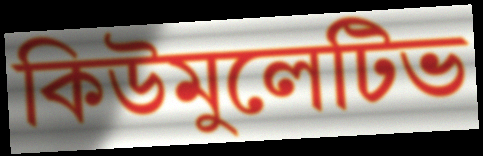
কিউমুলেটিভ